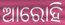
ଆରୋହି